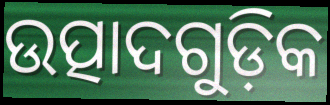
ଉତ୍ପାଦଗୁଡ଼ିକ